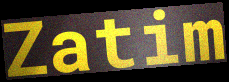
Zatim